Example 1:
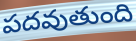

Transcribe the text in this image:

పదవుతుంది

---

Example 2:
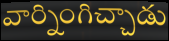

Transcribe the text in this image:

వార్నింగిచ్చాడు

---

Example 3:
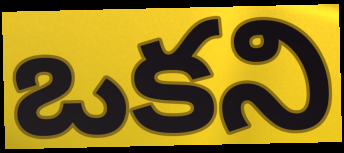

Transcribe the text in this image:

ఒకని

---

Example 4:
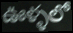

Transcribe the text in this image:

ఊళ్ళలో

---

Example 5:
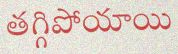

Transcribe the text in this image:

తగ్గిపోయాయి